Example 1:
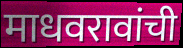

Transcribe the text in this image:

माधवरावांची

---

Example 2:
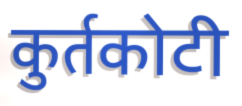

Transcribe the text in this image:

कुर्तकोटी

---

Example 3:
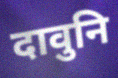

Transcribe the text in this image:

दावुनि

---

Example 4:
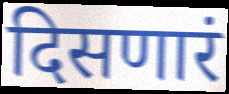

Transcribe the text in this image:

दिसणारं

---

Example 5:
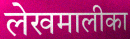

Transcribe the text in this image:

लेखमालीका